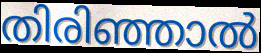
തിരിഞ്ഞാൽ